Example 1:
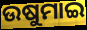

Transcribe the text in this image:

ଉଷୁମାଇ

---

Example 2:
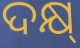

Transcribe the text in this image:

ଦକ୍ଷ୍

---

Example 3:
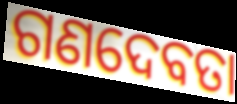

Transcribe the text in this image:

ଗଣଦେବତା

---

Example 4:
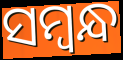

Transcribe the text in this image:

ସମ୍ବନ୍ଧ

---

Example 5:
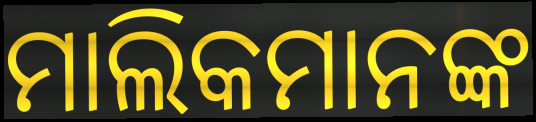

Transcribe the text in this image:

ମାଲିକମାନଙ୍କ